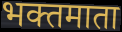
भक्तमाता